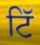
ਟਿੱ